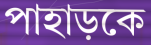
পাহাড়কে